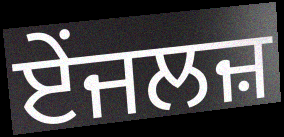
ਏਂਜਲਜ਼